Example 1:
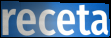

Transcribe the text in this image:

receta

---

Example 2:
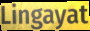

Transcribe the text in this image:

Lingayat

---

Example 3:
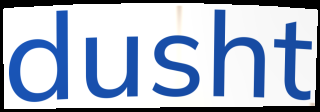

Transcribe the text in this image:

dusht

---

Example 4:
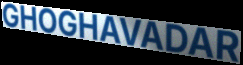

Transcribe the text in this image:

GHOGHAVADAR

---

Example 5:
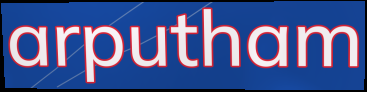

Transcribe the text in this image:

arputham